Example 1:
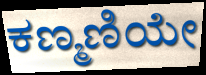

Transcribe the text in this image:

ಕಣ್ಮಣಿಯೇ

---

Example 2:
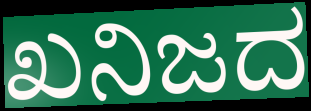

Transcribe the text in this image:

ಖನಿಜದ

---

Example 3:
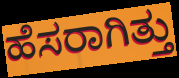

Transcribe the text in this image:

ಹೆಸರಾಗಿತ್ತು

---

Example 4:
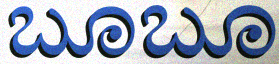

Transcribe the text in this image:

ಬೂಬೂ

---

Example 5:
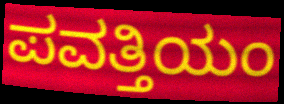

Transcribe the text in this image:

ಪವತ್ತಿಯಂ